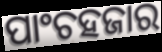
ପାଂଚହଜାର